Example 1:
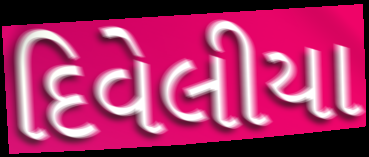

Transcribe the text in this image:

દિવેલીયા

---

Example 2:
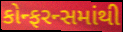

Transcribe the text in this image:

કોન્ફરન્સમાંથી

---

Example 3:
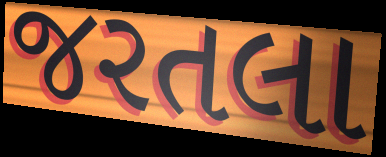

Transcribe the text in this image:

જરતલા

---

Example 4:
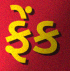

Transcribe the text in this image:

ફેંક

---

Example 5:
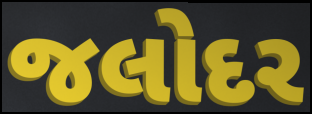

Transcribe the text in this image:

જલોદર